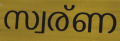
സ്വര്ണ